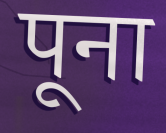
पूना